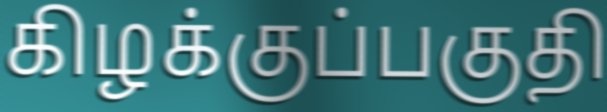
கிழக்குப்பகுதி